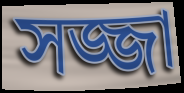
সজ্জা